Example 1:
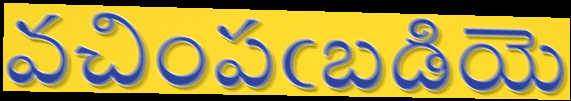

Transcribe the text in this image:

వచింపఁబడియె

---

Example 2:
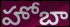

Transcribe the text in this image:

హోబా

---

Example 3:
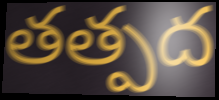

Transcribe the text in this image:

తత్పద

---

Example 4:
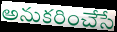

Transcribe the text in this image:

అనుకరించేసే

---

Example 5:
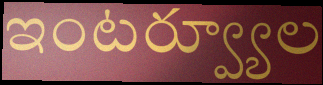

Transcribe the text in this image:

ఇంటర్వ్యూల